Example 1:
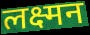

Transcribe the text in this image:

लक्ष्मन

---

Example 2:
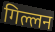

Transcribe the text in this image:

गिल्लन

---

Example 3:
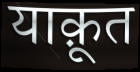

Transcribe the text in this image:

याक़ूत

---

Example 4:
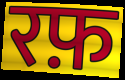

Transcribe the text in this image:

रफ़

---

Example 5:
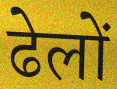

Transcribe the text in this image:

ढेलों